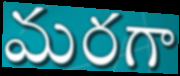
మరగా